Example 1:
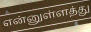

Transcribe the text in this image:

என்னுள்ளத்து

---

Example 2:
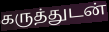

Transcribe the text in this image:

கருத்துடன்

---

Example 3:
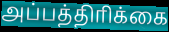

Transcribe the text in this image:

அப்பத்திரிக்கை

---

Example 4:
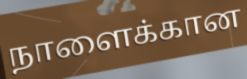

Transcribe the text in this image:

நாளைக்கான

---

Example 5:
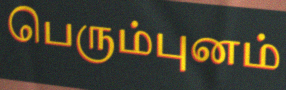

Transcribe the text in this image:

பெரும்புனம்